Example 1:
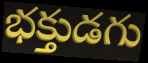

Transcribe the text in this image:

భక్తుడగు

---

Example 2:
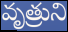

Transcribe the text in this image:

వృత్రుని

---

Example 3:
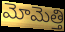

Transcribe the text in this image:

మోమెత్తి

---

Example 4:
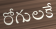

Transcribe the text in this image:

రోగులకే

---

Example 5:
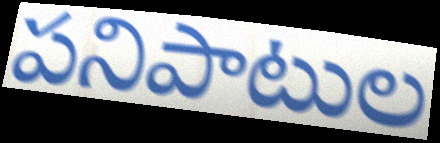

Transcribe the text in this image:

పనిపాటుల